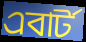
এবার্ট